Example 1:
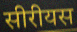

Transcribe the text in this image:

सीरीयस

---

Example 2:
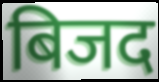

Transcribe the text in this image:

बिजद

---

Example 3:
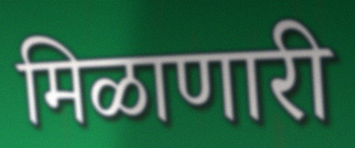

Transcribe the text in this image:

मिळाणारी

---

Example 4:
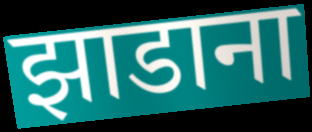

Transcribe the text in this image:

झाडाना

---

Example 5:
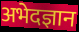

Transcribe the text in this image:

अभेदज्ञान